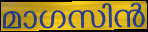
മാഗസിൻ